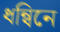
ধন্বিনে